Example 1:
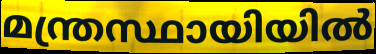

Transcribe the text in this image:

മന്ത്രസ്ഥായിയിൽ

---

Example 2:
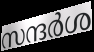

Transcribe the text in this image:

സന്ദർശ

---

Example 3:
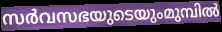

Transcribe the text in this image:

സർവസഭയുടെയുംമുമ്പിൽ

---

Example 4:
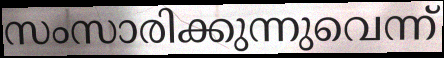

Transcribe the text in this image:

സംസാരിക്കുന്നുവെന്ന്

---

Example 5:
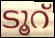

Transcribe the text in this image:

ടൂറ്